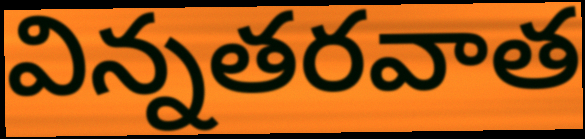
విన్నతరవాత